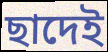
ছাদেই